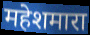
महेशमारा